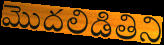
మొదలిడితిని